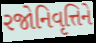
રજોનિવૃત્તિને